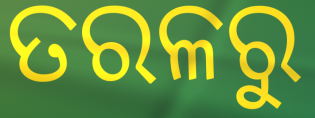
ତରଳରୁ